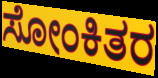
ಸೋಂಕಿತರ